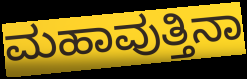
ಮಹಾವುತ್ತಿನಾ